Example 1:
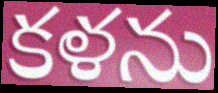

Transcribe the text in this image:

కళను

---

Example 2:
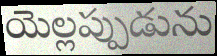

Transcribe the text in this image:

యెల్లప్పుడును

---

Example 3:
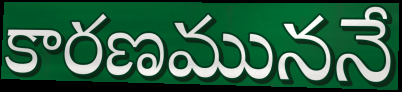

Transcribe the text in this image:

కారణముననే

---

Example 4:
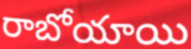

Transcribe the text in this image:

రాబోయాయి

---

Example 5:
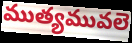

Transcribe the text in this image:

ముత్యమువలె